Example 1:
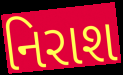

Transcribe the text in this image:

નિરાશ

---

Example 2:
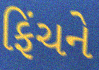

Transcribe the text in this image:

ફિંચને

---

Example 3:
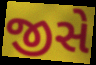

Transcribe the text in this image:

જીસે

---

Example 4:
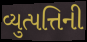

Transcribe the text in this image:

વ્યુત્પત્તિની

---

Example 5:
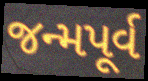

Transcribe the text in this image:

જન્મપૂર્વ